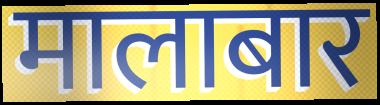
मालाबार